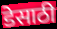
डेसाठी